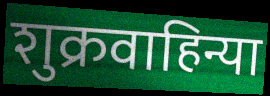
शुक्रवाहिन्या